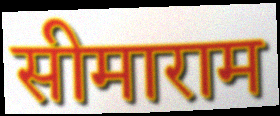
सीमाराम